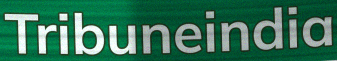
Tribuneindia